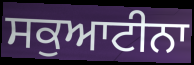
ਸਕੁਆਟੀਨਾ